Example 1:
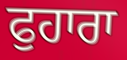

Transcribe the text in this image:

ਫੁਹਾਰਾ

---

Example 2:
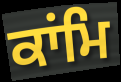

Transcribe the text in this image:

ਕਾਂਮਿ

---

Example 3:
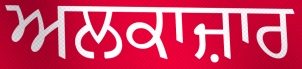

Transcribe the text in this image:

ਅਲਕਾਜ਼ਾਰ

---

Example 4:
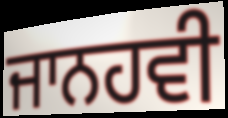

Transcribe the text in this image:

ਜਾਨਹਵੀ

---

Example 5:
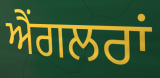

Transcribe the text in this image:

ਐਂਗਲਰਾਂ